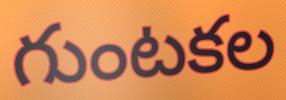
గుంటకల